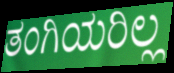
ತಂಗಿಯರಿಲ್ಲ